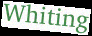
Whiting